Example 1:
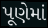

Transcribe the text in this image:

પૂણેમાં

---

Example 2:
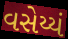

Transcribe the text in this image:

વસેય્યં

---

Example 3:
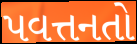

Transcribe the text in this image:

પવત્તનતો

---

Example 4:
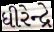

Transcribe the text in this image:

ધીરેન્દ્રે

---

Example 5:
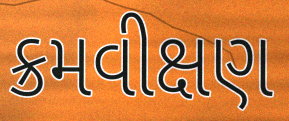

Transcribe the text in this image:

ક્રમવીક્ષણ